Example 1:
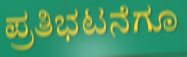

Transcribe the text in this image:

ಪ್ರತಿಭಟನೆಗೂ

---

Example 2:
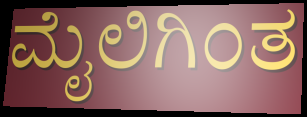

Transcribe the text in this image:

ಮೈಲಿಗಿಂತ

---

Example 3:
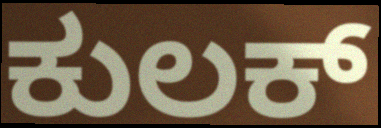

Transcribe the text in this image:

ಕುಲಕ್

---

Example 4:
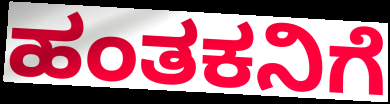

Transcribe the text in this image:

ಹಂತಕನಿಗೆ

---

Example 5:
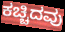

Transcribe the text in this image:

ಕಚ್ಚಿದವು